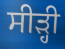
ਸੀੜ੍ਹੀ